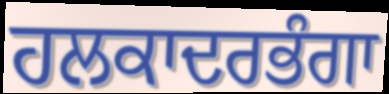
ਹਲਕਾਦਰਭੰਗਾ